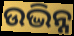
ଉଦ୍ଭିନ୍ନ